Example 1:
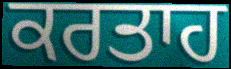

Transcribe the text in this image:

ਕਰਤਾਹ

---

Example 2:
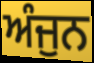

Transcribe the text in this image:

ਅੰਜੁਨ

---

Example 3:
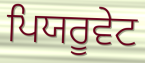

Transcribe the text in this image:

ਪਿਯਰੂਵੇਟ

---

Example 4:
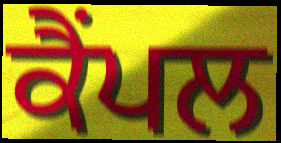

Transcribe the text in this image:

ਕੈਂਪਲ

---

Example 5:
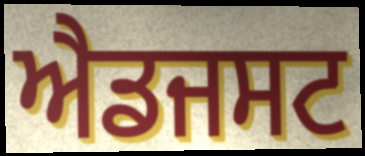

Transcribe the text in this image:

ਐਡਜਸਟ